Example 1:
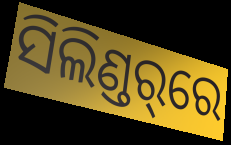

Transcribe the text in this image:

ସିଲିଣ୍ଡର୍‌ରେ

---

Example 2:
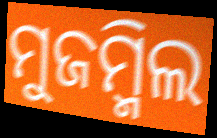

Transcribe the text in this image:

ମୁଜମ୍ମିଲ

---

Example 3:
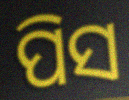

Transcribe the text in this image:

ପିସ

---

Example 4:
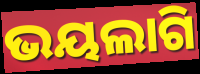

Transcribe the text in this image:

ଭୟଲାଗି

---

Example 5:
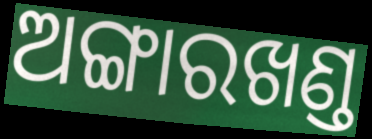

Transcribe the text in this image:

ଅଙ୍ଗାରଖଣ୍ଡ